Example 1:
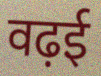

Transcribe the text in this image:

वढ़ई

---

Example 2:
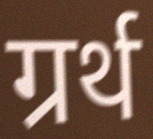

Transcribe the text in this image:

ग्रर्थ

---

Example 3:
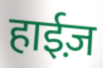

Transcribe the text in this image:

हाईज़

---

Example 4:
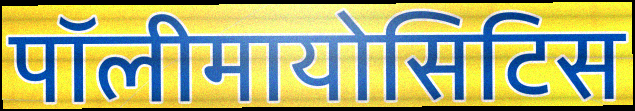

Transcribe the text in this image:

पॉलीमायोसिटिस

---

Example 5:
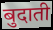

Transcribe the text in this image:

बुदाती